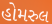
હોમરુલ